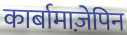
कार्बामाज़ेपिन